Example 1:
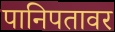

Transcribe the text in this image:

पानिपतावर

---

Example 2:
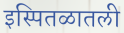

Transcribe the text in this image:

इस्पितळातली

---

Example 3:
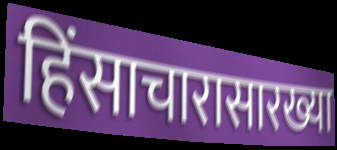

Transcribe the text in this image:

हिंसाचारासारख्या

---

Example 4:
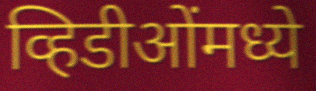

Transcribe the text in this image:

व्हिडीओंमध्ये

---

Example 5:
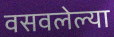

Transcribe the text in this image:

वसवलेल्या